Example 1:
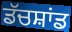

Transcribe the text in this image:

ਡੱਚਸ਼ਾਂਡ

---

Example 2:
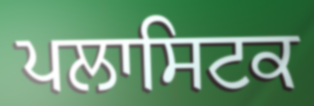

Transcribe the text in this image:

ਪਲਾਸਿਟਕ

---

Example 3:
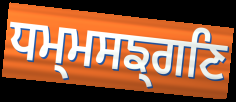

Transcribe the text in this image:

ਧਮ੍ਮਸਙ੍ਗਣਿ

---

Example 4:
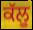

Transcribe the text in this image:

ਕੱਲੂ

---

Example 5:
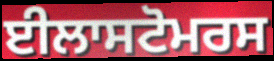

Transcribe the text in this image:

ਈਲਾਸਟੋਮਰਸ